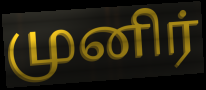
முனிர்